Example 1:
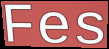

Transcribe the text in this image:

Fes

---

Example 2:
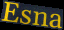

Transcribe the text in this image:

Esna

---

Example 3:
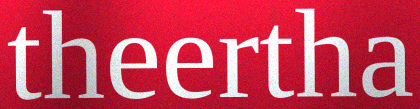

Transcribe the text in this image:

theertha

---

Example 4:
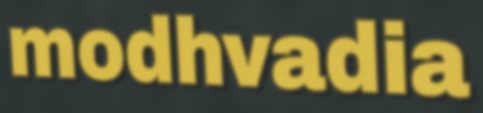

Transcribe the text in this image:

modhvadia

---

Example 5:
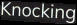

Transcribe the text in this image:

Knocking